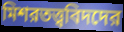
মিশরতত্ত্ববিদদের